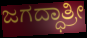
ಜಗದ್ಧಾತ್ರೀ